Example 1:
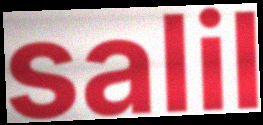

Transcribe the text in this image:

salil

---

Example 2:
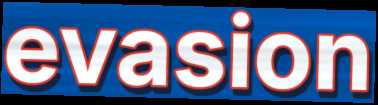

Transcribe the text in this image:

evasion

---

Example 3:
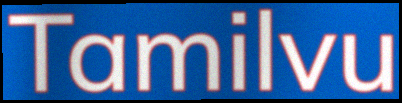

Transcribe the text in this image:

Tamilvu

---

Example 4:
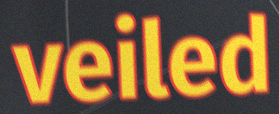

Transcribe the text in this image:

veiled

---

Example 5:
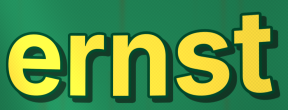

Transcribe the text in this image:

ernst